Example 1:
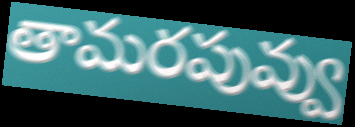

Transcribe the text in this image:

తామరపువ్వు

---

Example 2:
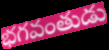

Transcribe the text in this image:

భగవంతుడు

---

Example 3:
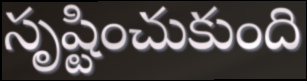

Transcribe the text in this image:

సృష్టించుకుంది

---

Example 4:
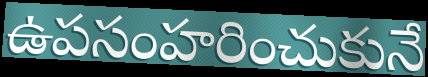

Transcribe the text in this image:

ఉపసంహరించుకునే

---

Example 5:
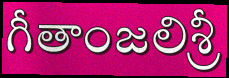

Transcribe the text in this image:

గీతాంజలిశ్రీ